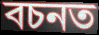
বচনত